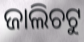
ଜାଲିଚଟୁ